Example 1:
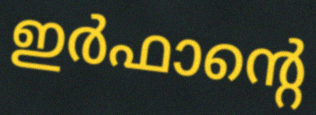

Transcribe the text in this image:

ഇർഫാന്റെ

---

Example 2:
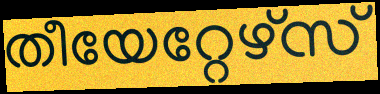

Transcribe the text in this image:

തീയേറ്റേഴ്സ്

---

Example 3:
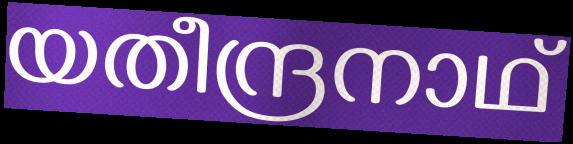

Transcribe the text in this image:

യതീന്ദ്രനാഥ്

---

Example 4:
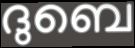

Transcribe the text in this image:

ദുബെ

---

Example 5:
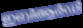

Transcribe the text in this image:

ഇബിആർഡി